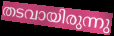
തടവായിരുന്നു